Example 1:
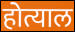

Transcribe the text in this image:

होत्याल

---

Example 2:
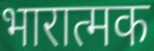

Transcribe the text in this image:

भारात्मक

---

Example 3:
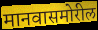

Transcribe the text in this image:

मानवासमोरील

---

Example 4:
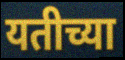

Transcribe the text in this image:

यतीच्या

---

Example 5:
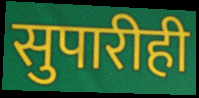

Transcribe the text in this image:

सुपारीही